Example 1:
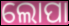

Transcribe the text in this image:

ଲୋପା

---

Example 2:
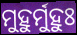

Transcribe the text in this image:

ମୁହୁର୍ମୁହୁଃ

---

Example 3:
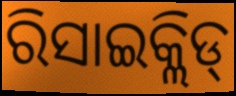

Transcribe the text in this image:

ରିସାଇକ୍ଲିଡ୍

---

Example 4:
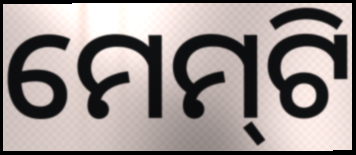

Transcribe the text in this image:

ମେମ୍‍ଟି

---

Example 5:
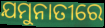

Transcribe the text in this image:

ଯମୁନାତୀରେ